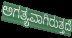
ಅಗತ್ಯವಾಗಿರುತ್ತದೆ